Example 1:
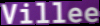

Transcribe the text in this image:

Villee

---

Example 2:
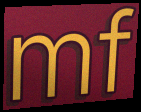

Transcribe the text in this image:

mf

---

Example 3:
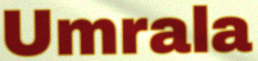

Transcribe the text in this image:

Umrala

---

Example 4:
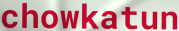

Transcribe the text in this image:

chowkatun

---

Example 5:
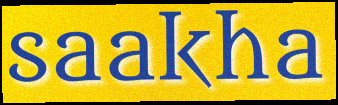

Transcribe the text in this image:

saakha